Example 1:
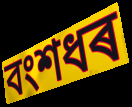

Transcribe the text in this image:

বংশধৰ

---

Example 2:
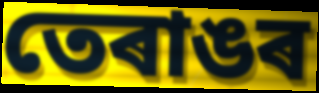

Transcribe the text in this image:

তেৰাঙৰ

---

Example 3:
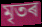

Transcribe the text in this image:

মৃতৰ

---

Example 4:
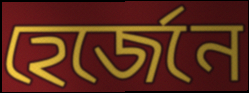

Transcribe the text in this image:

হেৰ্জেনে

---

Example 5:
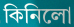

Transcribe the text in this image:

কিনিলো